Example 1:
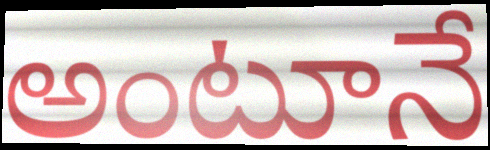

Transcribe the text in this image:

అంటూనే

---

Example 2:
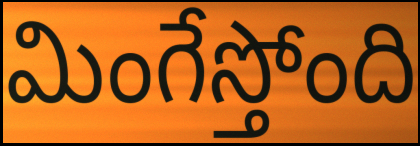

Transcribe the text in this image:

మింగేస్తోంది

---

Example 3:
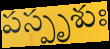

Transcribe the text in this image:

పస్పృశుః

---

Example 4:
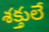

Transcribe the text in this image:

శక్తులే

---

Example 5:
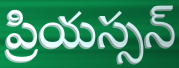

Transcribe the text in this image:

ప్రియస్సన్